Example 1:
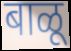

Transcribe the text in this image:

बाळू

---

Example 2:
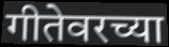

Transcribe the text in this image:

गीतेवरच्या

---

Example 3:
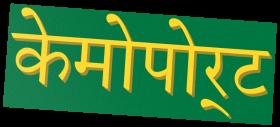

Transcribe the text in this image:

केमोपोर्ट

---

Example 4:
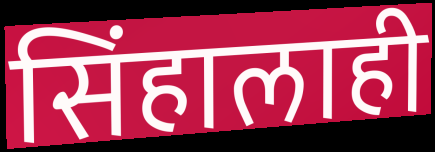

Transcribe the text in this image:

सिंहालाही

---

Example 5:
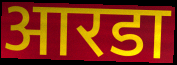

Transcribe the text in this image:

आरडा